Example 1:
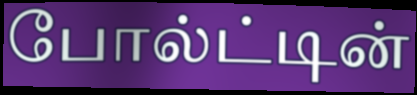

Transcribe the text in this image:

போல்ட்டின்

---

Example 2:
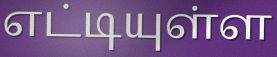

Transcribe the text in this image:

எட்டியுள்ள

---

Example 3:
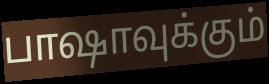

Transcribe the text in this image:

பாஷாவுக்கும்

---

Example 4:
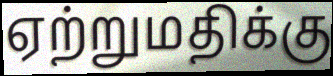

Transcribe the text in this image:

ஏற்றுமதிக்கு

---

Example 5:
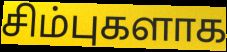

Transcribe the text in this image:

சிம்புகளாக